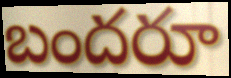
బందరూ